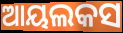
ଆୟଲକସ